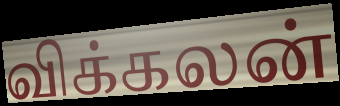
விக்கலன்